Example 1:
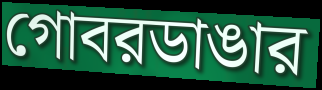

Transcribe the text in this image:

গোবরডাঙার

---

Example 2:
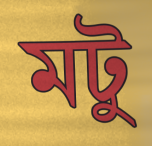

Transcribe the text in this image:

মটু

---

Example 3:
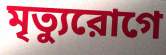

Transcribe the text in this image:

মৃত্যুরোগে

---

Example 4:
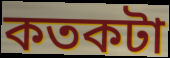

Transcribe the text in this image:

কতকটা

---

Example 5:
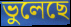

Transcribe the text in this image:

ভুলেছে